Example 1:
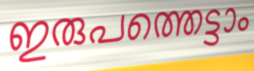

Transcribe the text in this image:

ഇരുപത്തെട്ടാം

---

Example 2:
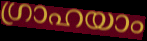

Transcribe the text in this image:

ഗ്രാഹയാം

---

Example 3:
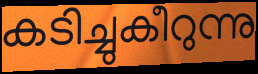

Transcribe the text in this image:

കടിച്ചുകീറുന്നു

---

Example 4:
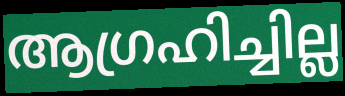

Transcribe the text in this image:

ആഗ്രഹിച്ചില്ല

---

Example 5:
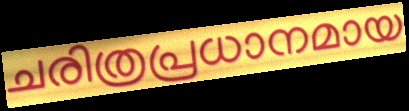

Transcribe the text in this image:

ചരിത്രപ്രധാനമായ